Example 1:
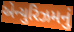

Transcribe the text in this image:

એન્યુરિઝમનું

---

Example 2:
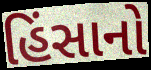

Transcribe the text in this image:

હિંસાનો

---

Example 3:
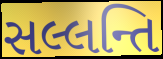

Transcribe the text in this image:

સલ્લન્તિ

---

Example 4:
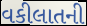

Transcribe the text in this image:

વકીલાતની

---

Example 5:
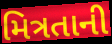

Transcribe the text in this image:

મિત્રતાની